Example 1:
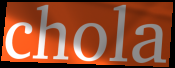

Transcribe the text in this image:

chola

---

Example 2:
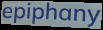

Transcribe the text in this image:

epiphany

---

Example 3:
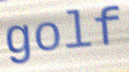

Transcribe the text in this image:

golf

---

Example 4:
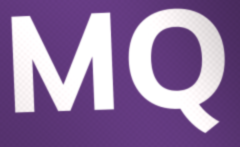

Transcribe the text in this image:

MQ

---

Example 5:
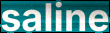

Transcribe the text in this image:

saline